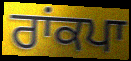
ਰਾਂਕਪਾ